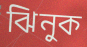
ঝিনুক